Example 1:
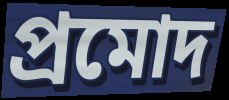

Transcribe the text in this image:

প্ৰমোদ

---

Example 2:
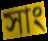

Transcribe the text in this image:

সাং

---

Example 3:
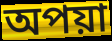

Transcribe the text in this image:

অপয়া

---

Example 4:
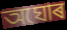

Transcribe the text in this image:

অঘোৰ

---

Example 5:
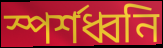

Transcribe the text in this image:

স্পৰ্শধ্বনি